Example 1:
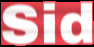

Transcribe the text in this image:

Sid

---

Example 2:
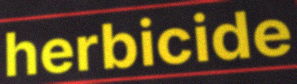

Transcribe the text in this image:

herbicide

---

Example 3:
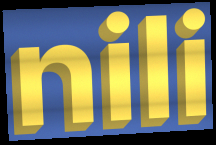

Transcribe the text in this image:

nili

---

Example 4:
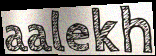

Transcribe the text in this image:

aalekh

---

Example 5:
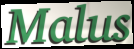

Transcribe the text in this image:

Malus